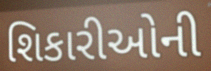
શિકારીઓની